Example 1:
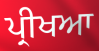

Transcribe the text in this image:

ਪ੍ਰੀਖਆ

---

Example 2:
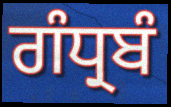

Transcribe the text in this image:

ਗੰਧ੍ਰਬੰ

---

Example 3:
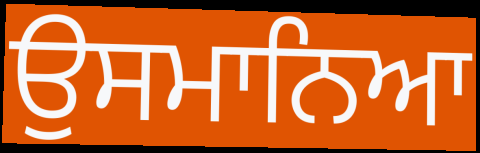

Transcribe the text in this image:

ਉਸਮਾਨਿਆ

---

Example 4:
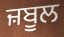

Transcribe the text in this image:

ਜ਼ਬੂਲ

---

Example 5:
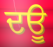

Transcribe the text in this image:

ਦਊ